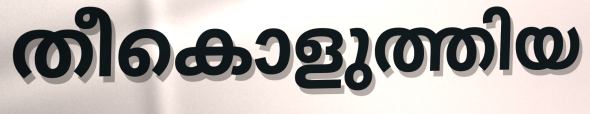
തീകൊളുത്തിയ